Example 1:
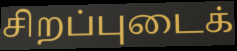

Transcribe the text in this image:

சிறப்புடைக்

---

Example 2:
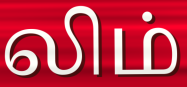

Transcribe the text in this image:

லிம்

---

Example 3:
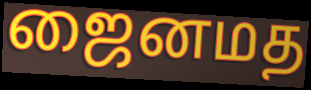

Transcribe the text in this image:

ஜைனமத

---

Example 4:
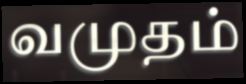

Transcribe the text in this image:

வமுதம்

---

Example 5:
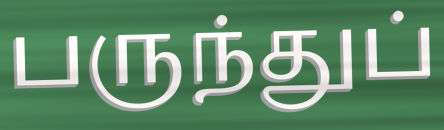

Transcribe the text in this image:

பருந்துப்